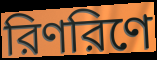
রিণরিণে